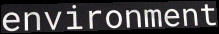
environment